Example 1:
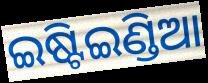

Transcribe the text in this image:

ଇଷ୍ଟିଇଣ୍ଡିଆ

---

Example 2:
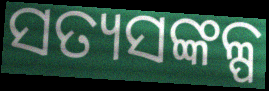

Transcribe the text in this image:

ସତ୍ୟସଙ୍କଳ୍ପ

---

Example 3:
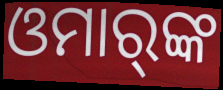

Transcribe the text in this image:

ଓମାର୍‌ଙ୍କ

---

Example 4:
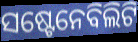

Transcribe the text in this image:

ସଷ୍ଟେନେବିଲିଟି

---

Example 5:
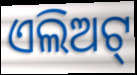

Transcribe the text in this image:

ଏଲିଅଟ୍